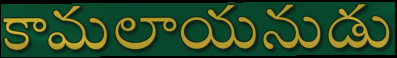
కామలాయనుడు